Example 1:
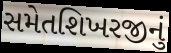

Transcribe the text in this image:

સમેતશિખરજીનું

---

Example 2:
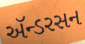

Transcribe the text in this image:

ઍન્ડરસન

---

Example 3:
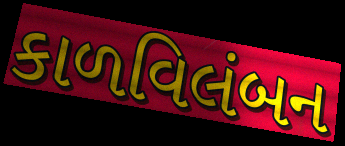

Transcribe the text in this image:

કાળવિલંબન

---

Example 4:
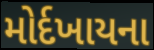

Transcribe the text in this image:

મોર્દખાયના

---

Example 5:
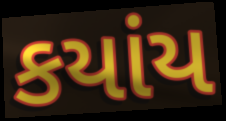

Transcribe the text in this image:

કયાંય